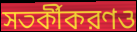
সতর্কীকরণও